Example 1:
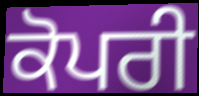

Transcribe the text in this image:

ਕੋਪਰੀ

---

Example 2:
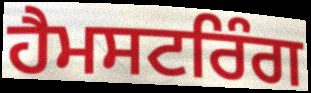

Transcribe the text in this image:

ਹੈਮਸਟਰਿੰਗ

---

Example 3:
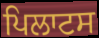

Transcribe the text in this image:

ਪਿਲਾਟਸ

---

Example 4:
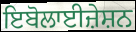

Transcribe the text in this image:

ਇਬੋਲਾਈਜ਼ੇਸ਼ਨ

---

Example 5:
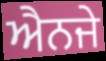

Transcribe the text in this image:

ਐਨਜੇ